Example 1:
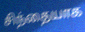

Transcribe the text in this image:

சிந்தையாக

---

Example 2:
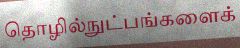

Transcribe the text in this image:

தொழில்நுட்பங்களைக்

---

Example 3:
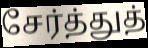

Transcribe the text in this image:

சேர்த்துத்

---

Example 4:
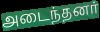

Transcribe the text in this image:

அடைந்தனர்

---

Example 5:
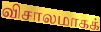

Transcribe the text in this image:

விசாலமாகக்